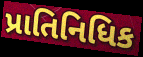
પ્રાતિનિધિક